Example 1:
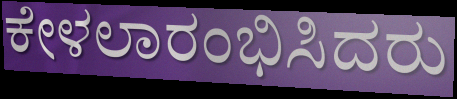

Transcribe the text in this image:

ಕೇಳಲಾರಂಭಿಸಿದರು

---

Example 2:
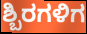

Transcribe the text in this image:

ಶ್ಬಿರಗಳಿಗ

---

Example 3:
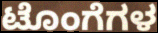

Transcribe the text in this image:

ಟೊಂಗೆಗಳ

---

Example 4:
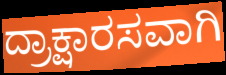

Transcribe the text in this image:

ದ್ರಾಕ್ಷಾರಸವಾಗಿ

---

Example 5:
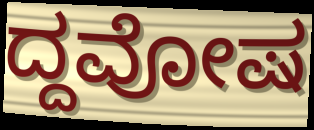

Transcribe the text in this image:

ದ್ದವೋಷ